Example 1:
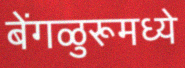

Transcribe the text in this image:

बेंगळुरूमध्ये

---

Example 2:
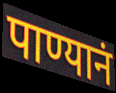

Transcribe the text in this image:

पाण्यानं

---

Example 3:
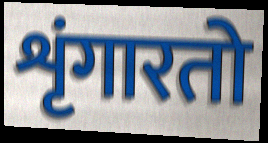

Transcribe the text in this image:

शृंगारतो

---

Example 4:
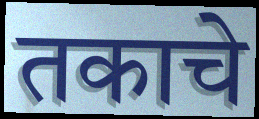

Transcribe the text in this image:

तकाचे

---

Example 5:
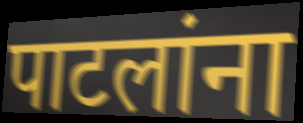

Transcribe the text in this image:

पाटलांना